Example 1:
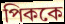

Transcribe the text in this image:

পিককে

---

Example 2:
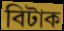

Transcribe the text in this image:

বিটাক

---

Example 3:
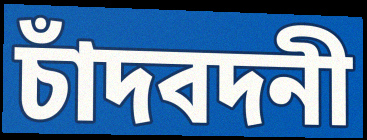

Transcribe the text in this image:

চাঁদবদনী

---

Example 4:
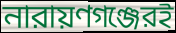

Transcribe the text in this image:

নারায়ণগঞ্জেরই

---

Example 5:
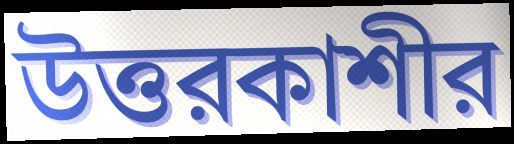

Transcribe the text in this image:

উত্তরকাশীর